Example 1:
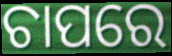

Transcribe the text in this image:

ଚାପରେ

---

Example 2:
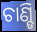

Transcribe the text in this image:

ଚାଣ୍ଡି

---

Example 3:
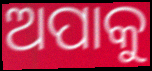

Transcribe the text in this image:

ଅପାକୁ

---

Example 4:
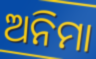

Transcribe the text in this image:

ଅନିମା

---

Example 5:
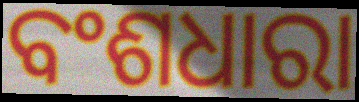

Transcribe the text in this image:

ବଂଶଧାରା